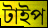
টাইপ